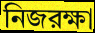
নিজরক্ষা